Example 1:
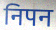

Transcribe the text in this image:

निपन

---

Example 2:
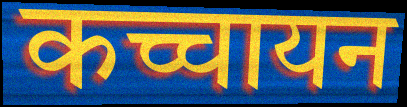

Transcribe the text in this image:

कच्चायन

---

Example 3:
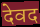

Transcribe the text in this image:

देवद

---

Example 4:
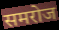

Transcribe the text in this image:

समरोज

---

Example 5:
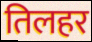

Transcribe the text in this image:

तिलहर